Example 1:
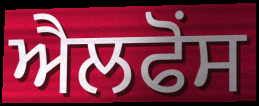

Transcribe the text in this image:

ਐਲਫੋਂਸ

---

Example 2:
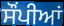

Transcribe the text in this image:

ਸੌਂਪੀਆਂ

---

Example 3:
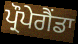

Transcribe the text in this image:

ਪ੍ਰੌਪੇਗੈਂਡਾ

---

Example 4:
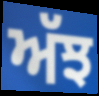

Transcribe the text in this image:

ਅੱਝ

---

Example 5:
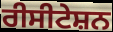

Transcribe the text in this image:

ਰੀਸੀਟੇਸ਼ਨ